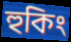
হুকিং